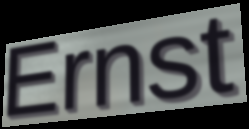
Ernst